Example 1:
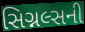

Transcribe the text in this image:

સિગ્નલ્સની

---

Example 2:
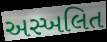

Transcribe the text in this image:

અસ્ખલિત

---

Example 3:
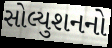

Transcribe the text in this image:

સોલ્યુશનનો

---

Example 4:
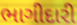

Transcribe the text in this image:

ભાગીદારી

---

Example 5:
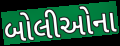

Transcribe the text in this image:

બોલીઓના